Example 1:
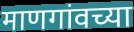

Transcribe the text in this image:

माणगांवच्या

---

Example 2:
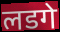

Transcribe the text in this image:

लडगे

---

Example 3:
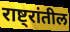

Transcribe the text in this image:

राष्ट्रांतील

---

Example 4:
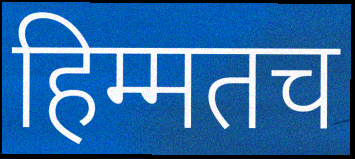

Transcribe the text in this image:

हिम्मतच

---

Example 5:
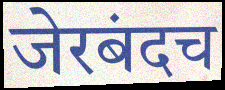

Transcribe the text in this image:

जेरबंदच